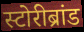
स्टोरीब्रांड